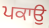
ਪਕਾਉ